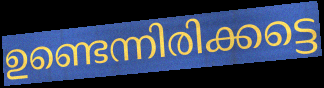
ഉണ്ടെന്നിരിക്കട്ടെ